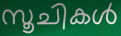
സൂചികൾ